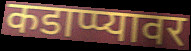
कडाप्प्यावर